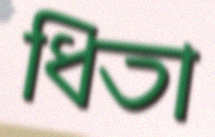
ধিতা